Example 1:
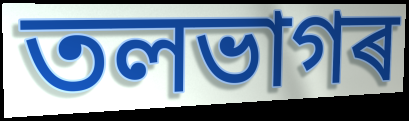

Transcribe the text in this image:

তলভাগৰ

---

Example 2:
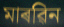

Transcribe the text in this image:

মাৰৱিন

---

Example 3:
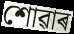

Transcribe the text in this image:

শোৱাৰ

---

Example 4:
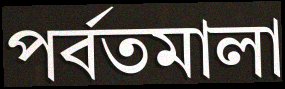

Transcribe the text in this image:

পৰ্বতমালা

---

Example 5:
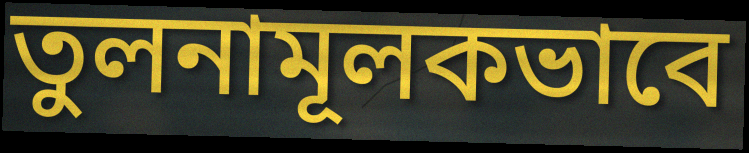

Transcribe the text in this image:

তুলনামূলকভাবে